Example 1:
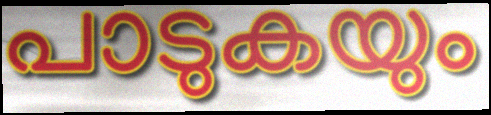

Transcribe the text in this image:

പാടുകയും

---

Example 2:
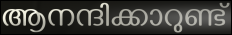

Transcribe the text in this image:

ആനന്ദിക്കാറുണ്ട്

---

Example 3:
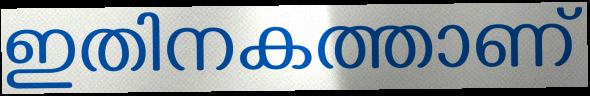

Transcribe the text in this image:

ഇതിനകത്താണ്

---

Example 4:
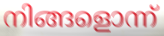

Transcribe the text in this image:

നിങ്ങളൊന്ന്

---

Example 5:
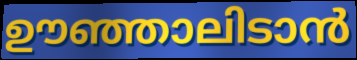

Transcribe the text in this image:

ഊഞ്ഞാലിടാൻ